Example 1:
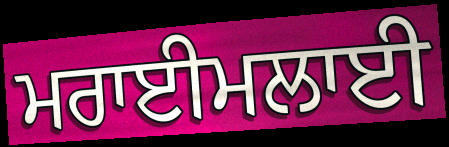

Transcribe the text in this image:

ਮਰਾਈਮਲਾਈ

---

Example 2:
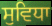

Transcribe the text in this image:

ਸੁਵਿਧਾ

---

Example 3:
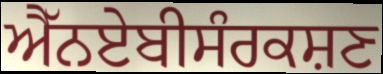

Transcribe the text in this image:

ਐੱਨਏਬੀਸੰਰਕਸ਼ਣ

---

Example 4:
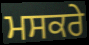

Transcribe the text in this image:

ਮਸਕਰੇ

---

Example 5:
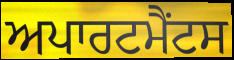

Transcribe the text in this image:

ਅਪਾਰਟਮੈਂਟਸ